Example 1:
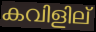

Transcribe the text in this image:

കവിളില്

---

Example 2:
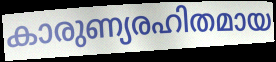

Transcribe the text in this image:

കാരുണ്യരഹിതമായ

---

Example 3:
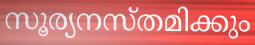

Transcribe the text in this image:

സൂര്യനസ്തമിക്കും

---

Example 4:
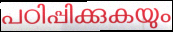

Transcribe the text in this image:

പഠിപ്പിക്കുകയും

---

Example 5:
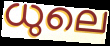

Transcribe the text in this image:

ധുലെ